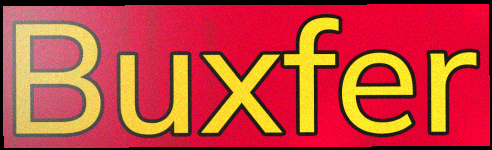
Buxfer